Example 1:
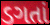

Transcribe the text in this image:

ડગતાં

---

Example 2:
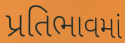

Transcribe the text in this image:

પ્રતિભાવમાં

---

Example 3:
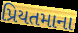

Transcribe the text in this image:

પ્રિયતમાના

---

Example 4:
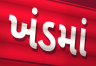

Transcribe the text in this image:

ખંડમાં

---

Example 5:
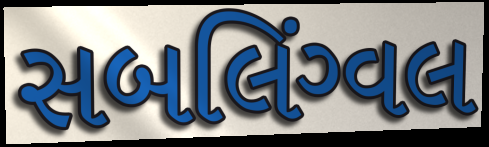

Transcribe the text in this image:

સબલિંગ્વલ